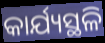
କାର୍ଯ୍ୟସ୍ଥଳି